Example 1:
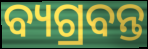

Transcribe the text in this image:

ବ୍ୟଗ୍ରବନ୍ତ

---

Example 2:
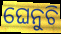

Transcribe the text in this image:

ଘେନୁଚି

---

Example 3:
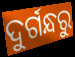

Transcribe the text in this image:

ଦୁର୍ଗନ୍ଧରୁ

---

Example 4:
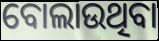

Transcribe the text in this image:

ବୋଲାଉଥିବା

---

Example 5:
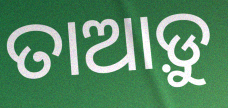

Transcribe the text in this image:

ତାଆଡ଼ୁ